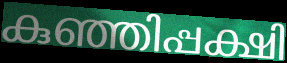
കുഞ്ഞിപ്പക്ഷി